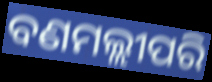
ବଣମଲ୍ଲୀପରି